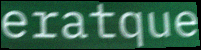
eratque